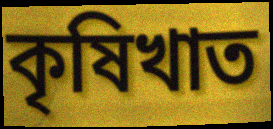
কৃষিখাত